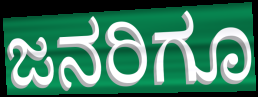
ಜನರಿಗೂ